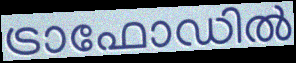
ട്രാഫോഡിൽ